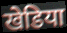
खेडिया